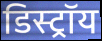
डिस्ट्रॉय